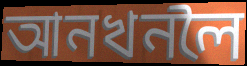
আনখনলৈ